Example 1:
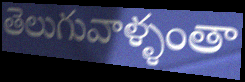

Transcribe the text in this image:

తెలుగువాళ్ళంతా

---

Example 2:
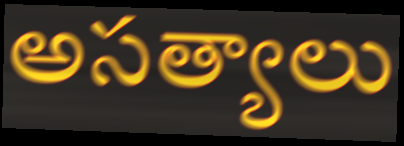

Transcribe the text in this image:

అసత్యాలు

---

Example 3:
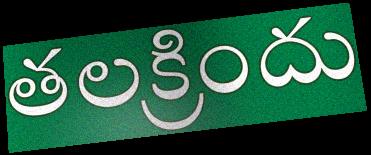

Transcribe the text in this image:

తలక్రిందు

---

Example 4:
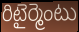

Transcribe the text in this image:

రిటైర్మెంటు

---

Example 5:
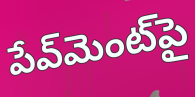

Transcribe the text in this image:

పేవ్‌మెంట్‌పై